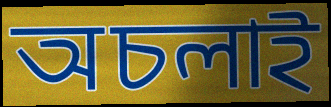
অচলাই